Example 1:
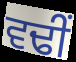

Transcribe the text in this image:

ਵਢੀਂ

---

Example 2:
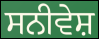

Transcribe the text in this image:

ਸਨੀਵੇਸ਼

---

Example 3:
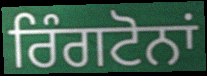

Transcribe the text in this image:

ਰਿੰਗਟੋਨਾਂ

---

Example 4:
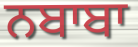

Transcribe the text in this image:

ਨਬਾਬਾ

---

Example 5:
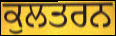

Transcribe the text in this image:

ਕੁਲਤਰਨ